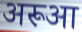
अरूआ